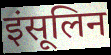
इंसूलिन